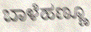
ಬಾಳೆಹಣ್ಣೂ